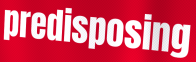
predisposing